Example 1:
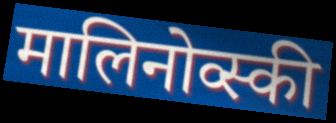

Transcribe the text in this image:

मालिनोव्स्की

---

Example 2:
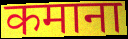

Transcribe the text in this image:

कमाना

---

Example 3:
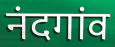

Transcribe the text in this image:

नंदगांव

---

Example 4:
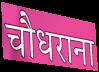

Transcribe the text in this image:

चौधराना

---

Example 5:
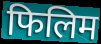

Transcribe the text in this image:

फिलिम